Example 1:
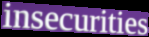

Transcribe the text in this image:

insecurities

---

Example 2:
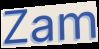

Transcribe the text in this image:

Zam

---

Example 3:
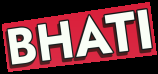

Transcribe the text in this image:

BHATI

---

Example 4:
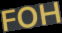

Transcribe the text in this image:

FOH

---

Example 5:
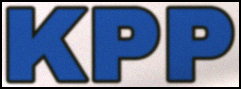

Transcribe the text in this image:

KPP